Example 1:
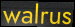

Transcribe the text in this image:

walrus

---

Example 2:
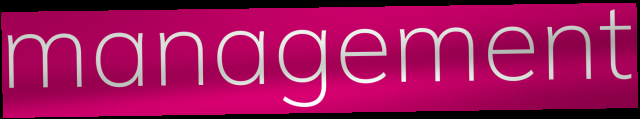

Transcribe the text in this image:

management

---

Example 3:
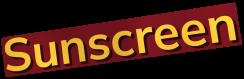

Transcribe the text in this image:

Sunscreen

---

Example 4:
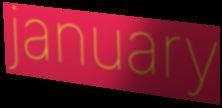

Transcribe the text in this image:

january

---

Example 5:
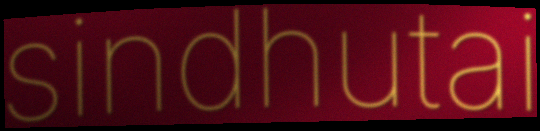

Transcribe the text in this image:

sindhutai